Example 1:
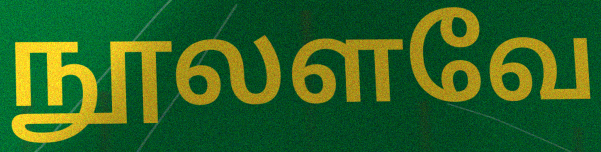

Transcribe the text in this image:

நூலளவே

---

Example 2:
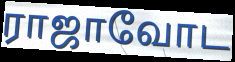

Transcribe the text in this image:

ராஜாவோட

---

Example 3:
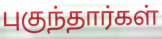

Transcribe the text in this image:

புகுந்தார்கள்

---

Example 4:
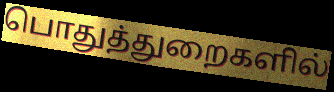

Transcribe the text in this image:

பொதுத்துறைகளில்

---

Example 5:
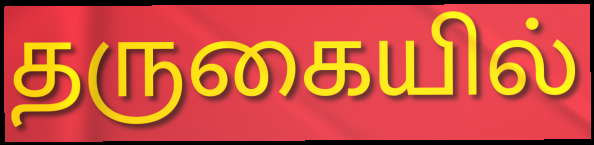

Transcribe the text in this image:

தருகையில்